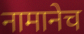
नामानेच